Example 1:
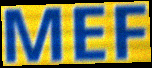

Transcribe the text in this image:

MEF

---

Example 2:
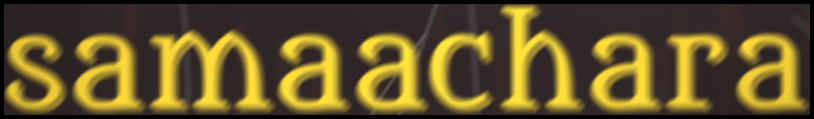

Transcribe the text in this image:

samaachara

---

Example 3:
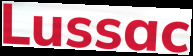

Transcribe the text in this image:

Lussac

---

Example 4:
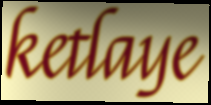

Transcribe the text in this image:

ketlaye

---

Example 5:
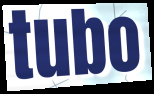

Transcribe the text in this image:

tubo